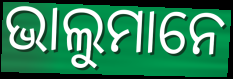
ଭାଲୁମାନେ